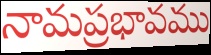
నామప్రభావము